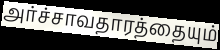
அர்ச்சாவதாரத்தையும்